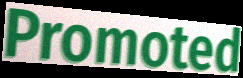
Promoted